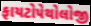
ફાયટોપેથોલોજી